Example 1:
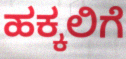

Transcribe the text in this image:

ಹಕ್ಕಲಿಗೆ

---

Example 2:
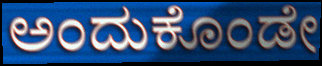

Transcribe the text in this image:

ಅಂದುಕೊಂಡೇ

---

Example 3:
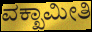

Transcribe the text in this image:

ವಕ್ಖಾಮೀತಿ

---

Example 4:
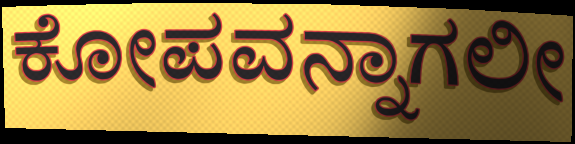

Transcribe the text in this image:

ಕೋಪವನ್ನಾಗಲೀ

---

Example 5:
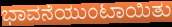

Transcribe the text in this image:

ಭಾವನೆಯುಂಟಾಯಿತು